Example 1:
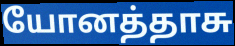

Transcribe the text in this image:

யோனத்தாசு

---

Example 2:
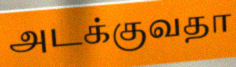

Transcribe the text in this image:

அடக்குவதா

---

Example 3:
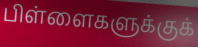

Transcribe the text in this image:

பிள்ளைகளுக்குக்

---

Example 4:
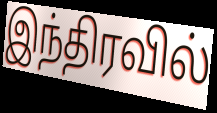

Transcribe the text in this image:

இந்திரவில்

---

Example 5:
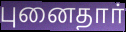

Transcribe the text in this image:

புனைதார்